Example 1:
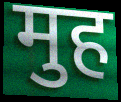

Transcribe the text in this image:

मुह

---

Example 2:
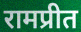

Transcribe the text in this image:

रामप्रीत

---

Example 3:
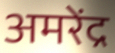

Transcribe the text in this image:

अमरेंद्र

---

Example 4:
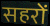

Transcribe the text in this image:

सहरों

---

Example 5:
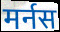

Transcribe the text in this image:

मर्नस